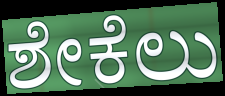
ಶೇಕೆಲು